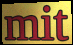
mit